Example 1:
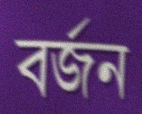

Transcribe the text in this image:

বর্জন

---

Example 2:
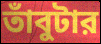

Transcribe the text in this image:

তাঁবুটার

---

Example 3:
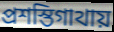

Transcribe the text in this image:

প্রশস্তিগাথায়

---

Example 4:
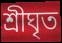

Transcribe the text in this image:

শ্রীঘৃত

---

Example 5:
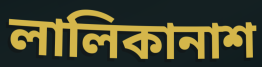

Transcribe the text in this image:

লালিকানাশ